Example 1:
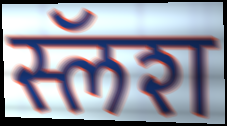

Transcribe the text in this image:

स्लॅश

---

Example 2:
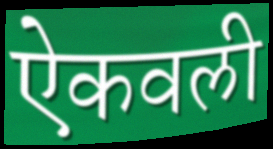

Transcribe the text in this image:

ऐकवली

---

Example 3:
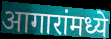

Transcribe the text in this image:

आगारांमध्ये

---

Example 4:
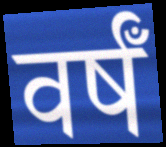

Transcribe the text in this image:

वर्षँ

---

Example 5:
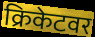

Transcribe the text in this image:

क्रिकेटवर